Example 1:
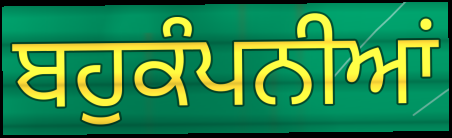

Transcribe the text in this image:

ਬਹੁਕੰਪਨੀਆਂ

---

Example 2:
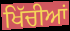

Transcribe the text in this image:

ਖਿੱਚੀਆਂ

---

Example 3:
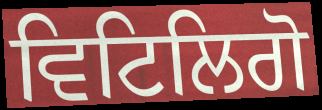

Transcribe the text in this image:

ਵਿਟਿਲਿਗੋ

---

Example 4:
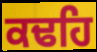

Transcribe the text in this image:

ਕਢਹਿ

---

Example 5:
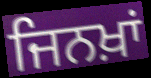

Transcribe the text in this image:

ਜਿਨਖ਼ਾਂ